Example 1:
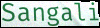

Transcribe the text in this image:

Sangali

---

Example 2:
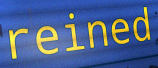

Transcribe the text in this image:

reined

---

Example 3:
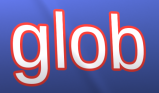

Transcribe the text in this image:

glob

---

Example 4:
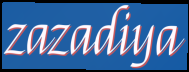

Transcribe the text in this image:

zazadiya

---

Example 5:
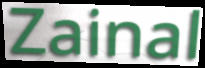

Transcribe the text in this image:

Zainal